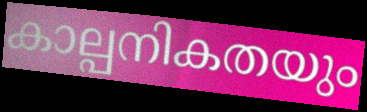
കാല്പനികതയും